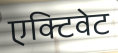
एक्टिवेट